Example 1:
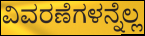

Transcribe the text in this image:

ವಿವರಣೆಗಳನ್ನೆಲ್ಲ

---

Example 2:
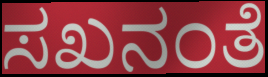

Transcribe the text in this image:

ಸಖನಂತೆ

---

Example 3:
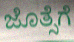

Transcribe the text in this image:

ಜೊತ್ಸೆಗೆ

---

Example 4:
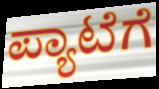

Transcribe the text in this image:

ಪ್ಯಾಟೆಗೆ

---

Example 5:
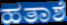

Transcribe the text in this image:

ಹತಾಶೆ